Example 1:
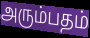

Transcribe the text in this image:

அரும்பதம்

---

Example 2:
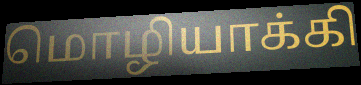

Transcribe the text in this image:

மொழியாக்கி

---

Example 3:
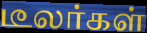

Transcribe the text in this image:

டீலர்கள்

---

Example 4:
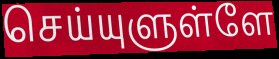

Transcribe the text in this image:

செய்யுளுள்ளே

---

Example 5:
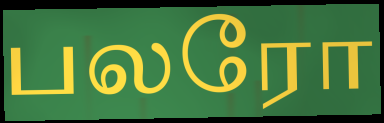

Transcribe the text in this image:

பலரோ